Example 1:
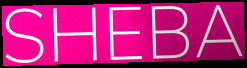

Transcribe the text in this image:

SHEBA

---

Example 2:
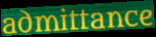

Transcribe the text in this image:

admittance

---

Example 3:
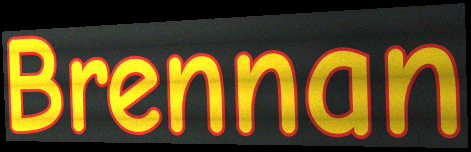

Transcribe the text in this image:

Brennan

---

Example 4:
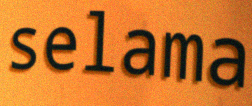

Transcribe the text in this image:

selama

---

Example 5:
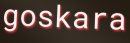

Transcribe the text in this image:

goskara